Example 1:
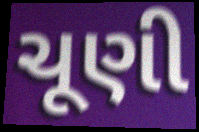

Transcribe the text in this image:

ચૂણી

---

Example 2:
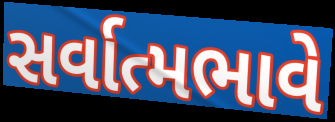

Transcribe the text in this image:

સર્વાત્મભાવે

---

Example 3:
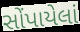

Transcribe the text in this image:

સોંપાયેલાં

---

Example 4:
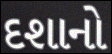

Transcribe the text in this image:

દશાનો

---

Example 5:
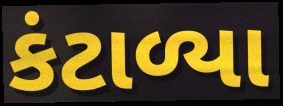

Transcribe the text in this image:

કંટાળ્યા